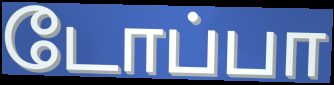
டோப்பா